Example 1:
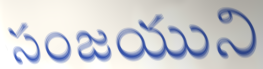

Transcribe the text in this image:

సంజయుని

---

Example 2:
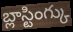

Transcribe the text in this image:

బ్లాస్టింగ్కు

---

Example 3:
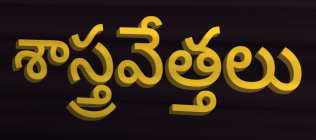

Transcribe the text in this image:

శాస్త్రవేత్తలు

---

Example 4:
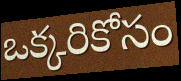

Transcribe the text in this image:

ఒక్కరికోసం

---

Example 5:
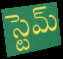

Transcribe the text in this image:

స్టెమ్